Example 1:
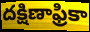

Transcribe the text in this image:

దక్షిణాఫ్రికా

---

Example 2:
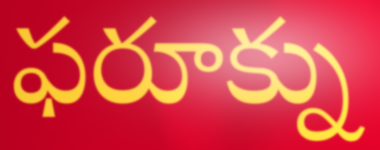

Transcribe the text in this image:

ఫరూక్ను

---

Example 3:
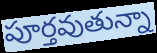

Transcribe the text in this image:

పూర్తవుతున్నా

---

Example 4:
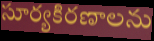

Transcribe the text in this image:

సూర్యకిరణాలను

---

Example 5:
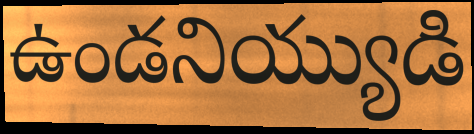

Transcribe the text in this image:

ఉండనియ్యుడి